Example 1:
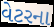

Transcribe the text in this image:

વેટરના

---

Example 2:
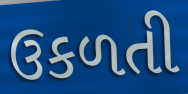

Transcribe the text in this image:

ઉકળતી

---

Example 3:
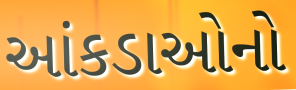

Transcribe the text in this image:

આંકડાઓનો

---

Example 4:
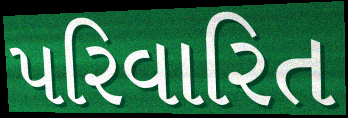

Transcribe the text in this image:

પરિવારિત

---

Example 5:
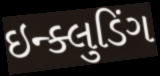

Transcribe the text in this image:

ઇન્ક્લુડિંગ